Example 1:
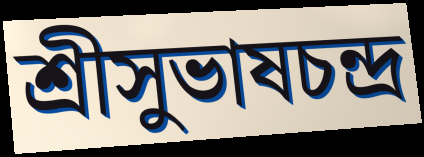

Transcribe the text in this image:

শ্রীসুভাষচন্দ্র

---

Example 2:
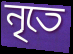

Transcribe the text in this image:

নৃতে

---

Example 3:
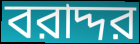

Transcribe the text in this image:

বরাদ্দর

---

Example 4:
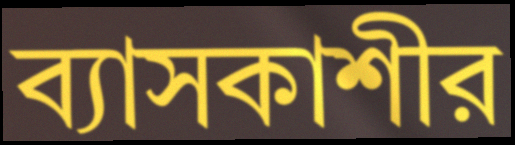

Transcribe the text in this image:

ব্যাসকাশীর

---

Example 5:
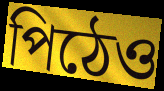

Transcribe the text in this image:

পিঠেও